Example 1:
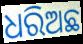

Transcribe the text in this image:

ଧରିଅଛ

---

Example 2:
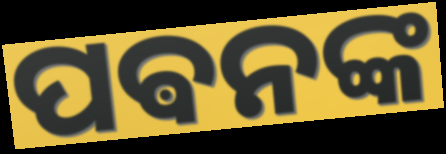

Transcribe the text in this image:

ପଵନଙ୍କ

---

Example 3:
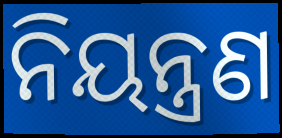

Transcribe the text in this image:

ନିୟନ୍ତ୍ରଣ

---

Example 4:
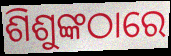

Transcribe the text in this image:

ଶିଶୁଙ୍କଠାରେ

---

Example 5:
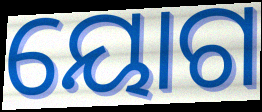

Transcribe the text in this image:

ୟୋଗ